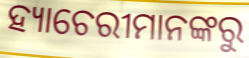
ହ୍ୟାଚେରୀମାନଙ୍କରୁ